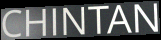
CHINTAN